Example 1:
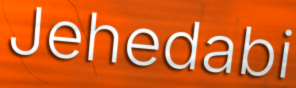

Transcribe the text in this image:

Jehedabi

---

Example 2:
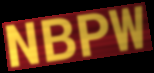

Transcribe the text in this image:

NBPW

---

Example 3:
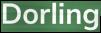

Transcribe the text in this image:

Dorling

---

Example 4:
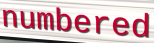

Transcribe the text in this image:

numbered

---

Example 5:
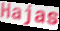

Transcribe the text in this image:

Hajas